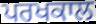
ਪਰਖਕਾਲ